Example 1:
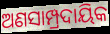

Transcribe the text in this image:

ଅଣସାମ୍ପ୍ରଦାୟିକ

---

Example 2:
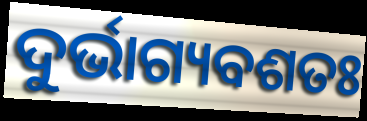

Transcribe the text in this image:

ଦୁର୍ଭାଗ୍ୟବଶତଃ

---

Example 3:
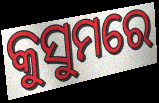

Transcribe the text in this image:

କୁସୁମରେ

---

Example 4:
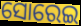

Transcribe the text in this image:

ସୋରେଇ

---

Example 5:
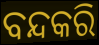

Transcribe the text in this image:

ବନ୍ଦକରି